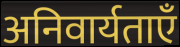
अनिवार्यताएँ